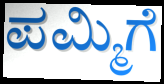
ಪಮ್ಮಿಗೆ